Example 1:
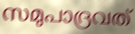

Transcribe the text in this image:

സമുപാദ്രവത്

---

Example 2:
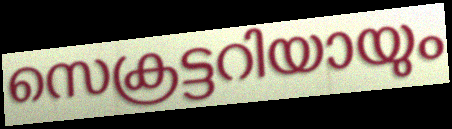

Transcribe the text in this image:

സെക്രട്ടറിയായും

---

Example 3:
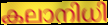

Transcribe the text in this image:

കലാനിധി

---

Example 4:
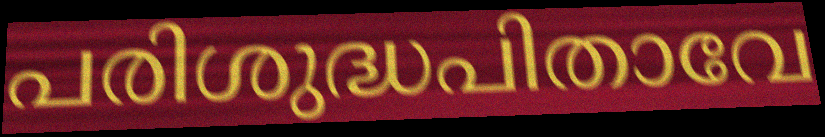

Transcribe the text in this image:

പരിശുദ്ധപിതാവേ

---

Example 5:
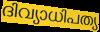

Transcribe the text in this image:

ദിവ്യാധിപത്യ